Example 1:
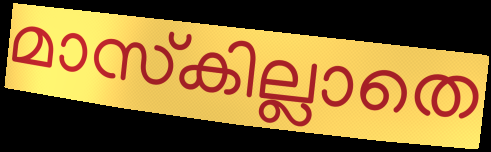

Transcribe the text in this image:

മാസ്‌കില്ലാതെ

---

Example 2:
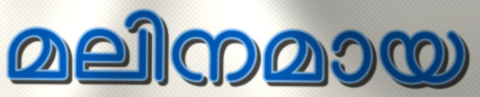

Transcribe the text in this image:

മലിനമായ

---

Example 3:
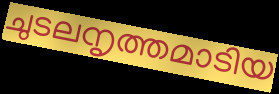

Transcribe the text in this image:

ചുടലനൃത്തമാടിയ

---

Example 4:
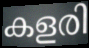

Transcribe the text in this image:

കളരി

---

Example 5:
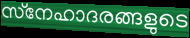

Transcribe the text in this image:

സ്‌നേഹാദരങ്ങളുടെ